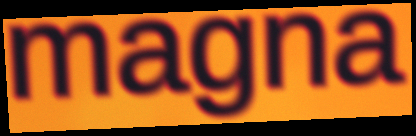
magna